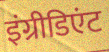
इंग्रीडिएंट